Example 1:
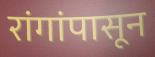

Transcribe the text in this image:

रांगांपासून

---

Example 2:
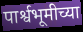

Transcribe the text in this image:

पार्श्वभूमीच्या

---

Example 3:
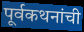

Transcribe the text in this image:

पूर्वकथनांची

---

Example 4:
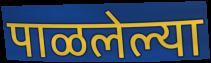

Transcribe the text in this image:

पाळलेल्या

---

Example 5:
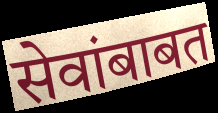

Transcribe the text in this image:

सेवांबाबत